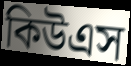
কিউএস